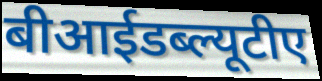
बीआईडब्ल्यूटीए